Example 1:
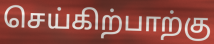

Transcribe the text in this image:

செய்கிற்பாற்கு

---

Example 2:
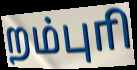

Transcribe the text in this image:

றம்புரி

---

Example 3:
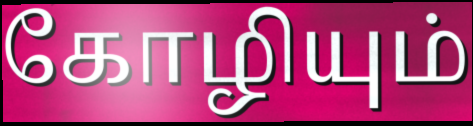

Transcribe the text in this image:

கோழியும்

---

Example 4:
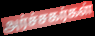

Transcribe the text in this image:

அர்ச்சகர்கள்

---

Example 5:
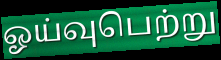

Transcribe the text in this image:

ஓய்வுபெற்று